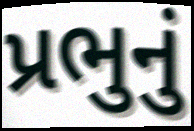
પ્રભુનું